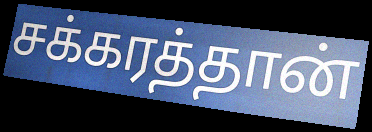
சக்கரத்தான்